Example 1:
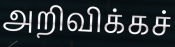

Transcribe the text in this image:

அறிவிக்கச்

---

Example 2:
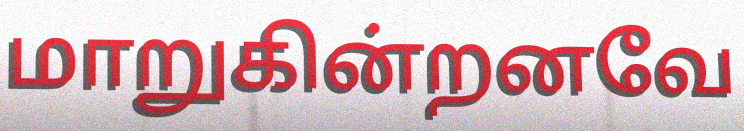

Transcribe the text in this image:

மாறுகின்றனவே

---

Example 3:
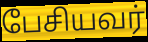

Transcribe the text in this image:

பேசியவர்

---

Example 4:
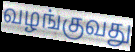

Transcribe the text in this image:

வழங்குவது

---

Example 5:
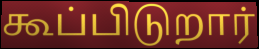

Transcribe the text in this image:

கூப்பிடுறார்